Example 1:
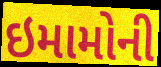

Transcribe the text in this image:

ઇમામોની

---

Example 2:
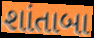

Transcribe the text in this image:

શાંતાબા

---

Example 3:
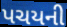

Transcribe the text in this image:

પચયની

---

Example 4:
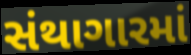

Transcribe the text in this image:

સંથાગારમાં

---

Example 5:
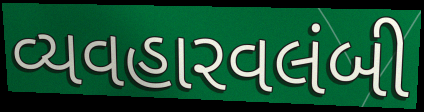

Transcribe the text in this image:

વ્યવહારવલંબી